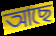
আছে